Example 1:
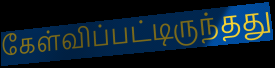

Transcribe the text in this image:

கேள்விப்பட்டிருந்தது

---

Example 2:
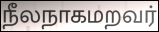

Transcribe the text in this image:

நீலநாகமறவர்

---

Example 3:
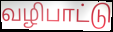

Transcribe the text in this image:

வழிபாட்டு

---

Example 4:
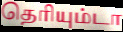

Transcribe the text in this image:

தெரியும்டா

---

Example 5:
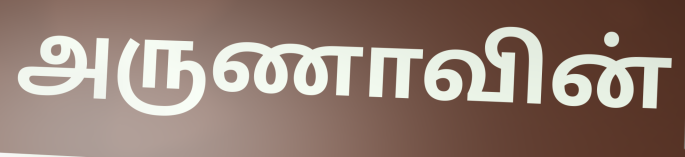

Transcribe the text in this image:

அருணாவின்